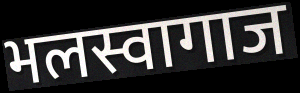
भलस्वागाज